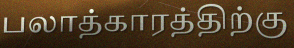
பலாத்காரத்திற்கு